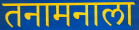
तनामनाला